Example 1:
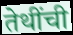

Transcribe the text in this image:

तेथींची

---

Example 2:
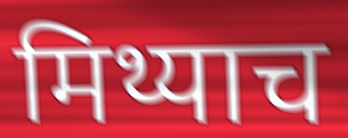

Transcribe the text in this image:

मिथ्याच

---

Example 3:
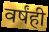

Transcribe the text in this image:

वर्षंही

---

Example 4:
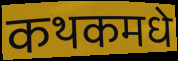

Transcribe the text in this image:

कथकमधे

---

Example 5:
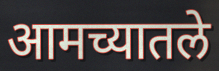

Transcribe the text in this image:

आमच्यातले